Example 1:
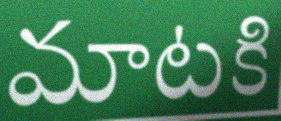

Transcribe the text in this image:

మాటకి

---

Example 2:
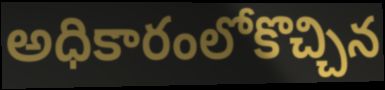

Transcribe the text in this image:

అధికారంలోకొచ్చిన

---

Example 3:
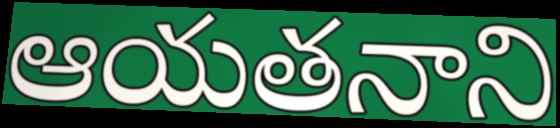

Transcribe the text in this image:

ఆయతనాని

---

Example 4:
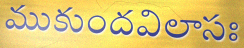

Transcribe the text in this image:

ముకుందవిలాసః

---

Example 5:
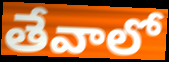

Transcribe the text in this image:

తేవాలో